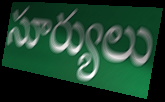
సూర్యులు